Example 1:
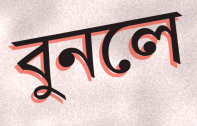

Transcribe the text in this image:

বুনলে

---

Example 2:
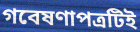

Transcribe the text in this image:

গবেষণাপত্রটিই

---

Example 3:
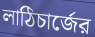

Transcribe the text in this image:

লাঠিচার্জের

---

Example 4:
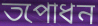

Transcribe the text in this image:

তপোধন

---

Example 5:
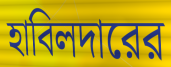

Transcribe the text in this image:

হাবিলদারের